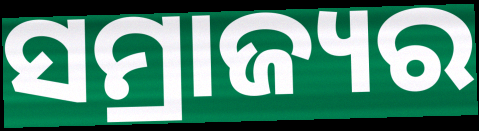
ସମ୍ରାଜ୍ୟର